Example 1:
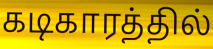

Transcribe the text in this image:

கடிகாரத்தில்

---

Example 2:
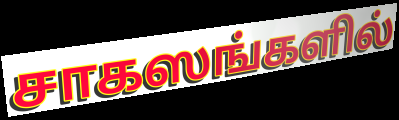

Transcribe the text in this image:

சாகஸங்களில்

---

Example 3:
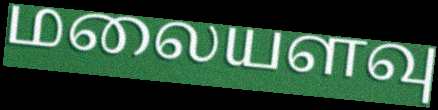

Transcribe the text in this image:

மலையளவு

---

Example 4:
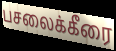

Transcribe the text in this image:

பசலைக்கீரை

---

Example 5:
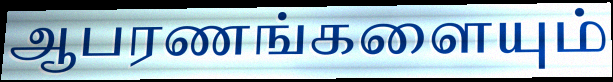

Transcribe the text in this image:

ஆபரணங்களையும்